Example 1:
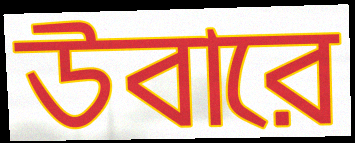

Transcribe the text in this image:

উবারে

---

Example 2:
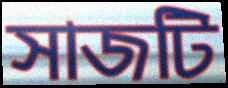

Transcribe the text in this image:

সাজটি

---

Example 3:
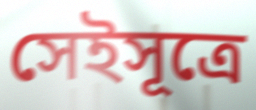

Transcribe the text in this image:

সেইসূত্রে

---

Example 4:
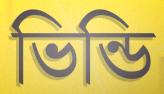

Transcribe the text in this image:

ভিন্ডি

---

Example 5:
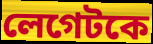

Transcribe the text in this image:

লেগেটকে